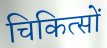
चिकित्सों